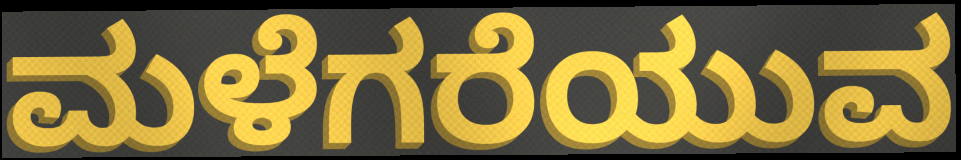
ಮಳೆಗರೆಯುವ